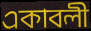
একাবলী